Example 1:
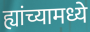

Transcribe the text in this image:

ह्यांच्यामध्ये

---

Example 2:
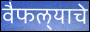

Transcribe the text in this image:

वैफल्याचे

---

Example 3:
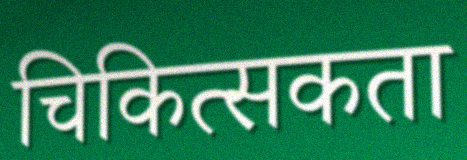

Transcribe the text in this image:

चिकित्सकता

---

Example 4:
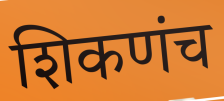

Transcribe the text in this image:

शिकणंच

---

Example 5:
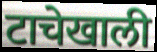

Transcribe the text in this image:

टाचेखाली